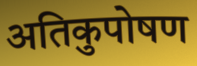
अतिकुपोषण